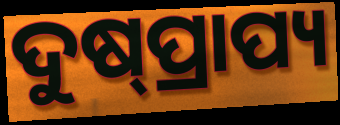
ଦୁଷ୍‌ପ୍ରାପ୍ୟ